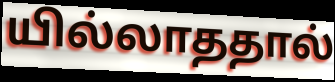
யில்லாததால்